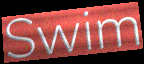
Swim